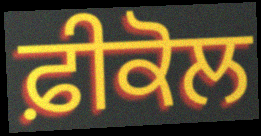
ਫ਼ੀਕੋਲ